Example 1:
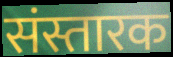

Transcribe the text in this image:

संस्तारक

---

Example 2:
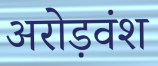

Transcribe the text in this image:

अरोड़वंश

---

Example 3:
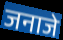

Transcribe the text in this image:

जनाजे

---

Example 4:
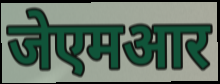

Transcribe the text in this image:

जेएमआर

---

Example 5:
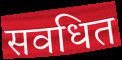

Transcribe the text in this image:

सवधित